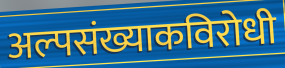
अल्पसंख्याकविरोधी